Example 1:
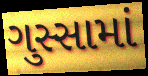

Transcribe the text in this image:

ગુસ્સામાં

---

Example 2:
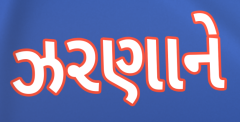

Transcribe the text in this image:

ઝરણાને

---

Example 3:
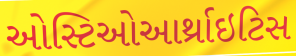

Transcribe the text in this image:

ઓસ્ટિઓઆર્થ્રાઇટિસ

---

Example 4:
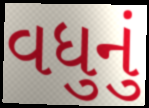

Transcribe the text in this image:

વધુનું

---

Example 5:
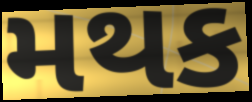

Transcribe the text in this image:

મથક